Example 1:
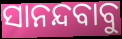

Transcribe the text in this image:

ସାନନ୍ଦବାବୁ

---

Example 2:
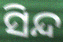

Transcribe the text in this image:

ସିନ୍ଦ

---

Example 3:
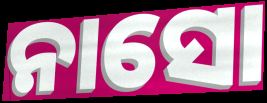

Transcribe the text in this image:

ନାସୋ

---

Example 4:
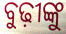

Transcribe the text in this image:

ବୁଢ଼ୀଙ୍କୁ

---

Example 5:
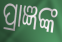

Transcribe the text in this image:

ପ୍ରାଜ୍ଞଙ୍କ